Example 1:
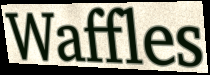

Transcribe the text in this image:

Waffles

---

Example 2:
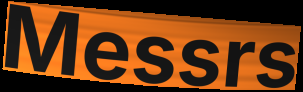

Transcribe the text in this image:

Messrs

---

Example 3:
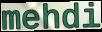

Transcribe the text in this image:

mehdi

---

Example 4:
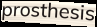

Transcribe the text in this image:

prosthesis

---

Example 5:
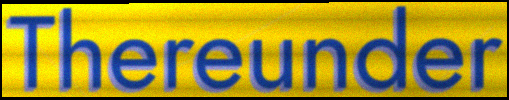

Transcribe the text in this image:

Thereunder